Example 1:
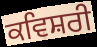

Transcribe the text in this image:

ਕਵਿਸ਼ਰੀ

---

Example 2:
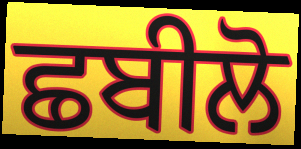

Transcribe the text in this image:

ਛਬੀਲੋ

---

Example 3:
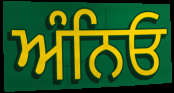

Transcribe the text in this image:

ਅੰਨਿਓ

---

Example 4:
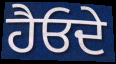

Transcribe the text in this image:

ਹੈਓਦੇ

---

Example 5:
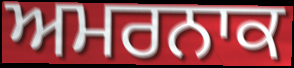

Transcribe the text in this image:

ਅਮਰਨਾਕ